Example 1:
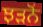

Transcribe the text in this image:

ਝੜਨੋਂ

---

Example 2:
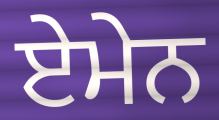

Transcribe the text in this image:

ਏਮੇਨ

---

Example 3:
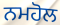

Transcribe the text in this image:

ਨਮਹੋਲ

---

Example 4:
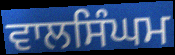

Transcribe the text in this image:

ਵਾਲਸਿੰਘਮ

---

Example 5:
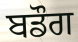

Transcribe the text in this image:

ਬਡੌਗ